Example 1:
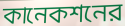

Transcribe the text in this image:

কানেকশনের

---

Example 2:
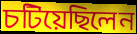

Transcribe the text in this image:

চটিয়েছিলেন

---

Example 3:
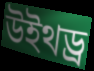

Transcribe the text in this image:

উইথড্র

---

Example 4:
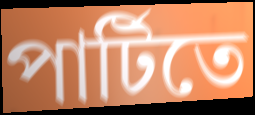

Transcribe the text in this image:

পার্টিতে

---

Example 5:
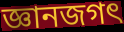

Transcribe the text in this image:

জ্ঞানজগৎ